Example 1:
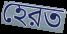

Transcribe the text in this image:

হেরত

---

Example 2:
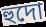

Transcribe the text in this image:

হুদো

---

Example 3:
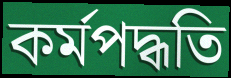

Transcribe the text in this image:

কর্মপদ্ধতি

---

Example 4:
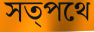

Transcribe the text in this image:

সত্পথে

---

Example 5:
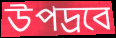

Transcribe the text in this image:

উপদ্রবে